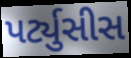
પર્ટ્યુસીસ